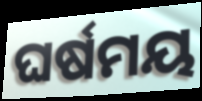
ଘର୍ଷମୟ